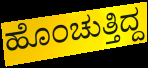
ಹೊಂಚುತ್ತಿದ್ದ